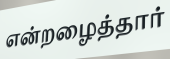
என்றழைத்தார்